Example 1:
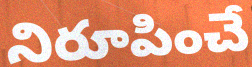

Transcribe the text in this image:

నిరూపించే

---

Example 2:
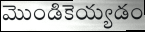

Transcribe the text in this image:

మొండికెయ్యడం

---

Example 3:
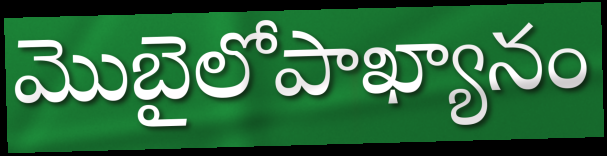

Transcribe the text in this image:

మొబైలోపాఖ్యానం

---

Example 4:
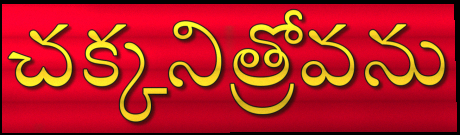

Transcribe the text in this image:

చక్కనిత్రోవను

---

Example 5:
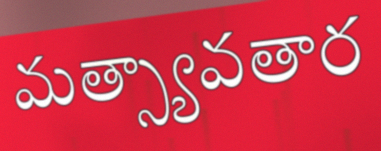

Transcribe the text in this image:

మత్స్యావతార